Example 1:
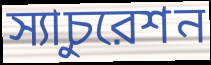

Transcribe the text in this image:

স্যাচুরেশন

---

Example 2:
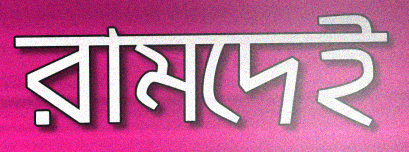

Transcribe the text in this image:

রামদেই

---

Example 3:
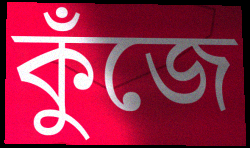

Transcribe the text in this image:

কুঁজে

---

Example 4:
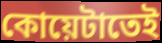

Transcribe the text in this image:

কোয়েটাতেই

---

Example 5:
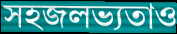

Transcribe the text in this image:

সহজলভ্যতাও